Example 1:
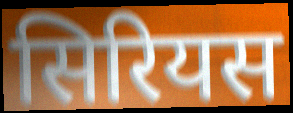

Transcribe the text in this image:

सिरियस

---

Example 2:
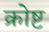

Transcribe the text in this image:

क्रोष्ट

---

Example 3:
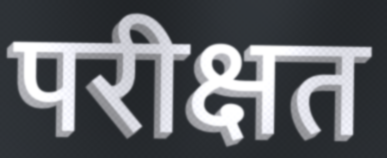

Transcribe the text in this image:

परीक्षत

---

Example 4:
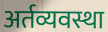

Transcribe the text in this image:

अर्तव्यवस्था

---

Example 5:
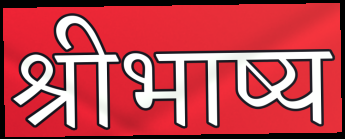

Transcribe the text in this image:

श्रीभाष्य